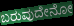
ಬರುವುದೇನೋ